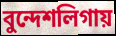
বুন্দেশলিগায়